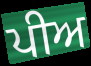
ਪੀਅ